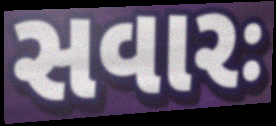
સવારઃ